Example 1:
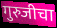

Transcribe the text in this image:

गुरुजीचा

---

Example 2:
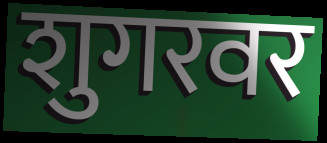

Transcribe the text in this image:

शुगरवर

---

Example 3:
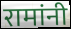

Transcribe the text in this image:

रामांनी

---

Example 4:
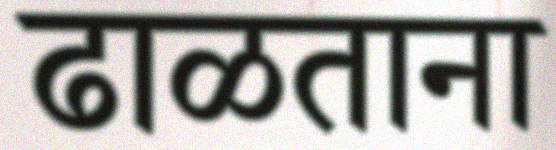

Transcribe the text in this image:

ढाळताना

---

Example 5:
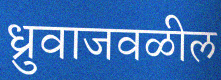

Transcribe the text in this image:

ध्रुवाजवळील